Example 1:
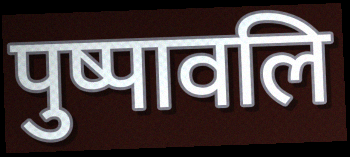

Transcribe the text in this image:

पुष्पावलि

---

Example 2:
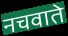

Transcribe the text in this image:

नचवाते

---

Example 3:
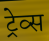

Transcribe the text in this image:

ट्रेव्स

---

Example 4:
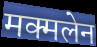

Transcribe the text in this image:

मक्मलेन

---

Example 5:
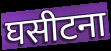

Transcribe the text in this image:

घसीटना